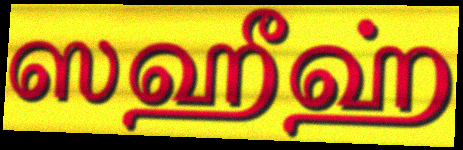
ஸஹீஹ்